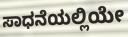
ಸಾಧನೆಯಲ್ಲಿಯೇ